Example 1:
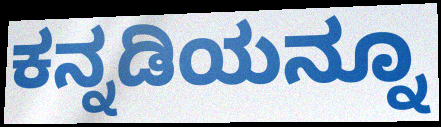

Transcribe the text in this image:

ಕನ್ನಡಿಯನ್ನೂ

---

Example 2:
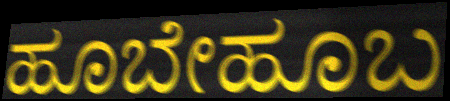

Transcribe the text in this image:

ಹೂಬೇಹೂಬ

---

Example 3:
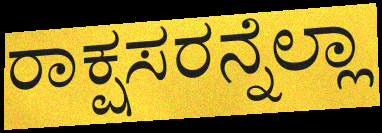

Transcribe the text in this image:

ರಾಕ್ಷಸರನ್ನೆಲ್ಲಾ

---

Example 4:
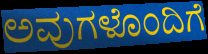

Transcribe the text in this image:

ಅವುಗಳೊಂದಿಗೆ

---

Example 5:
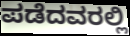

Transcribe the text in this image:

ಪಡೆದವರಲ್ಲಿ